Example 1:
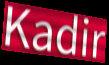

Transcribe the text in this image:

Kadir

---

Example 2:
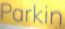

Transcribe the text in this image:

Parkin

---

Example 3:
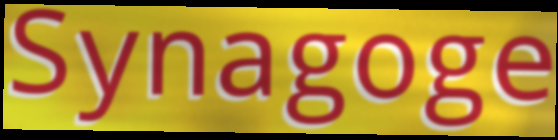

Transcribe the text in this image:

Synagoge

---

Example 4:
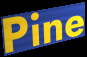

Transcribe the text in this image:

Pine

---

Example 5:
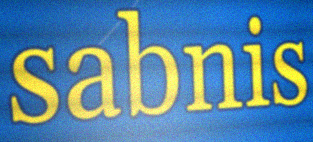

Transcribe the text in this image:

sabnis